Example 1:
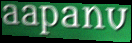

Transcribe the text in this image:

aapanu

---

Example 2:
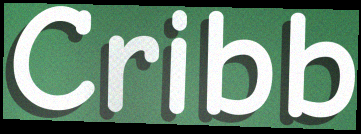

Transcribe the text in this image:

Cribb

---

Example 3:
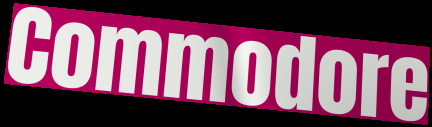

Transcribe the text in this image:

Commodore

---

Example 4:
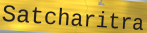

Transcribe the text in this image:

Satcharitra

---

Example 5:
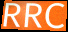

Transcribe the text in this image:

RRC